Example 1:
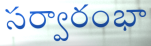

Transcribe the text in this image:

సర్వారంభా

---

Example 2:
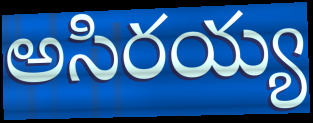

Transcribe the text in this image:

అసిరయ్య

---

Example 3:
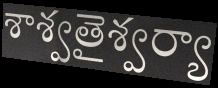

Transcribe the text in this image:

శాశ్వతైశ్వర్యా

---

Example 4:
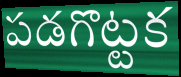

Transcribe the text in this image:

పడగొట్టక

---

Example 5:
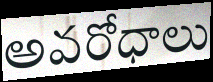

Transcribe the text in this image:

అవరోధాలు